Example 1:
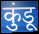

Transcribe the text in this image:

कुंडू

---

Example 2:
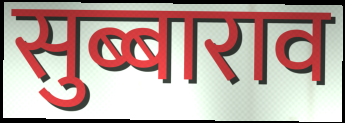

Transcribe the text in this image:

सुब्‍बाराव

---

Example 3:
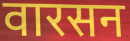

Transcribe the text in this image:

वारसन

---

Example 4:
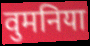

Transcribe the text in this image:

वुमनिया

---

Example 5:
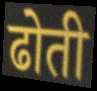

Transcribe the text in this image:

ढोती